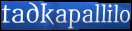
tadkapallilo